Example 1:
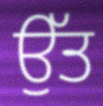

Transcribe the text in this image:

ਉੱਤ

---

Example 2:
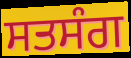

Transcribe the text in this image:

ਸਤਸੰਗ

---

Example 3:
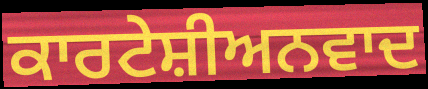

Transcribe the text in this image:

ਕਾਰਟੇਸ਼ੀਅਨਵਾਦ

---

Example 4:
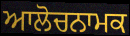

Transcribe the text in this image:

ਆਲੋਚਨਾਮਕ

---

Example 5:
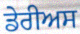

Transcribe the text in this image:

ਡੇਰੀਅਸ